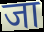
जा